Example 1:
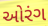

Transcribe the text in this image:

ઓરંગ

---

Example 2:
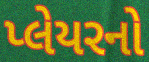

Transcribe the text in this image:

પ્લેયરનો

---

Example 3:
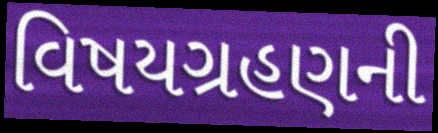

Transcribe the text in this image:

વિષયગ્રહણની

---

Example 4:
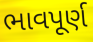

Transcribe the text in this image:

ભાવપૂર્ણ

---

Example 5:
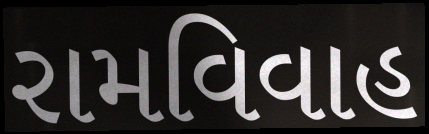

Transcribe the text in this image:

રામવિવાહ